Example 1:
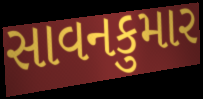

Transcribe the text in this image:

સાવનકુમાર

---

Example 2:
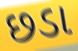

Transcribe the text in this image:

છડા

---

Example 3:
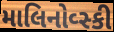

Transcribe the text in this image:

માલિનોવ્સ્કી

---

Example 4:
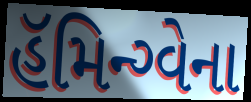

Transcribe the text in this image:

હૅમિન્ગ્વેના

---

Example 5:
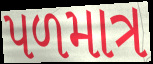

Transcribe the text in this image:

પળમાત્ર